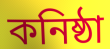
কনিষ্ঠা